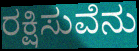
ರಕ್ಷಿಸುವೆನು